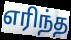
எரிந்த